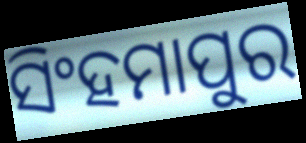
ସିଂହମାପୁର